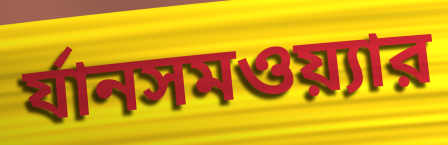
র্যানসমওয়্যার